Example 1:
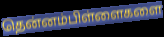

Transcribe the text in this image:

தென்னம்பிள்ளைகளை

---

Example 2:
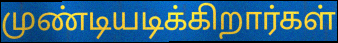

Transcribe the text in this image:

முண்டியடிக்கிறார்கள்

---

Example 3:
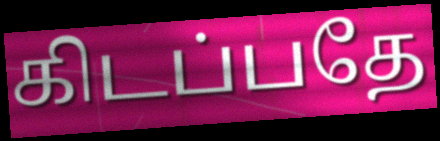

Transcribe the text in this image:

கிடப்பதே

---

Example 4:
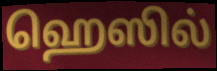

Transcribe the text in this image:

ஹெஸில்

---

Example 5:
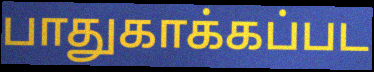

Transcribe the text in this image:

பாதுகாக்கப்பட